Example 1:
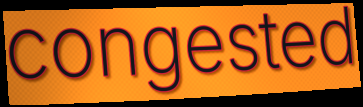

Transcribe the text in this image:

congested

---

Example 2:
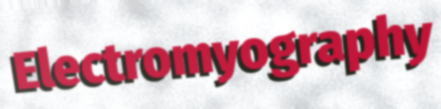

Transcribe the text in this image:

Electromyography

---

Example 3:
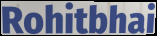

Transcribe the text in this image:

Rohitbhai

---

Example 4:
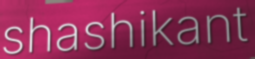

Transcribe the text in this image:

shashikant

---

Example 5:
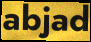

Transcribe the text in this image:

abjad